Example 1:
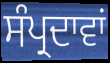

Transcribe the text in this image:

ਸੰਪ੍ਰਦਾਵਾਂ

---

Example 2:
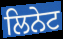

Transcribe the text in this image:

ਲਿਨੇਟ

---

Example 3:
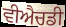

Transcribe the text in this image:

ਵੀਐਚਡੀ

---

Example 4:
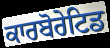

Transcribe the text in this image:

ਕਾਰਬੋਰੇਟਿਡ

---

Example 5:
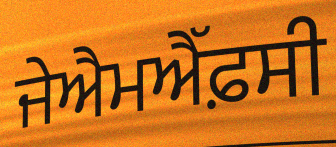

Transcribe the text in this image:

ਜੇਐਮਐੱਫ਼ਸੀ